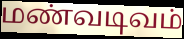
மண்வடிவம்